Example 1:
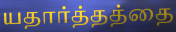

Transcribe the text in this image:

யதார்த்தத்தை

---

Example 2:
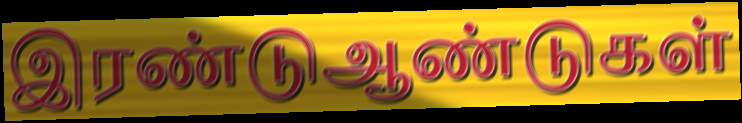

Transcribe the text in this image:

இரண்டுஆண்டுகள்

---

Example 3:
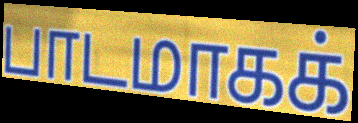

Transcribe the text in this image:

பாடமாகக்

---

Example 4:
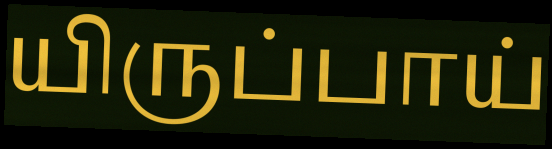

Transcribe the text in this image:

யிருப்பாய்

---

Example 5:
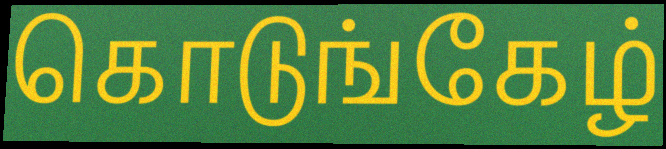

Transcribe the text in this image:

கொடுங்கேழ்